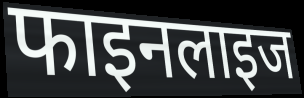
फाइनलाइज